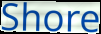
Shore